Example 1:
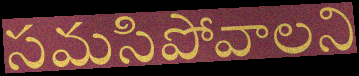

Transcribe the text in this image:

సమసిపోవాలని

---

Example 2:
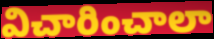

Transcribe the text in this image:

విచారించాలా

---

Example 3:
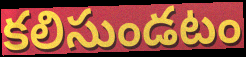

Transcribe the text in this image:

కలిసుండటం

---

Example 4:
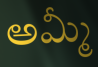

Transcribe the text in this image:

అమ్మీ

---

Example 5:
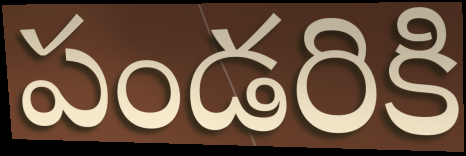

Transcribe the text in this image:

పండరికి